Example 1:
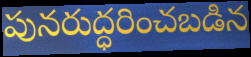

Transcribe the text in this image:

పునరుద్ధరించబడిన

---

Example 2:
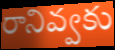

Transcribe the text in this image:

రానివ్వకు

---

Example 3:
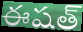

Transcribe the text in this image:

ఈషత్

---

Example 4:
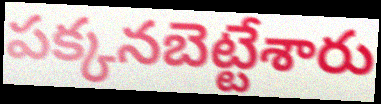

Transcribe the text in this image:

పక్కనబెట్టేశారు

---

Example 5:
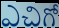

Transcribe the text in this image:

ఎచిగో